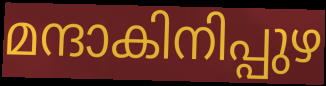
മന്ദാകിനിപ്പുഴ